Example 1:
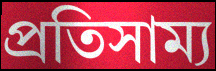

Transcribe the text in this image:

প্রতিসাম্য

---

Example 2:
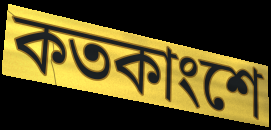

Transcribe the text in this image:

কতকাংশে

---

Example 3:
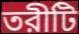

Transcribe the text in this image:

তরীটি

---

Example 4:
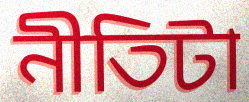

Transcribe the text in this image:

নীতিটা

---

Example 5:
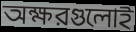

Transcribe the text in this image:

অক্ষরগুলোই